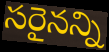
సరైనన్ని